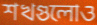
শখগুলোও